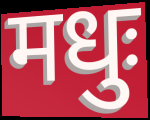
मधुः